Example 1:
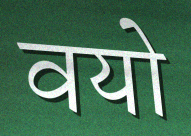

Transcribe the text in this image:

वयो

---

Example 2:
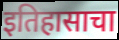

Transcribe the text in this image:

इतिहासाचा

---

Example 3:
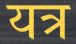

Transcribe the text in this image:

यत्र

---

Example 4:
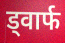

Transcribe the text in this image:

ड्वार्फ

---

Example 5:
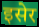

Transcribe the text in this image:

इसेर